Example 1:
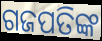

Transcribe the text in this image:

ଗଜପତିଙ୍କ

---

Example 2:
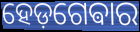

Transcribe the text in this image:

ହେଡ଼ଗେଵାର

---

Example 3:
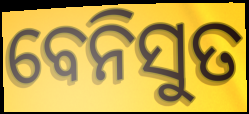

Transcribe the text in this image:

ବେନିସୁତ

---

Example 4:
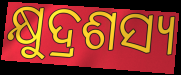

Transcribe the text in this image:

କ୍ଷୁଦ୍ରଶସ୍ୟ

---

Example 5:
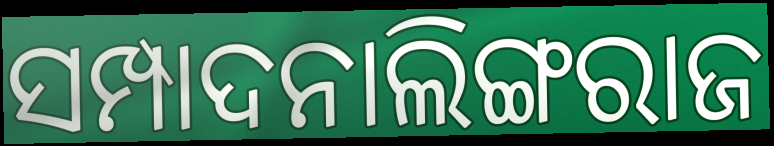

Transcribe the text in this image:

ସମ୍ପାଦନାଲିଙ୍ଗରାଜ